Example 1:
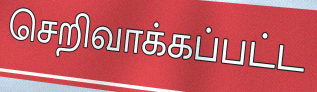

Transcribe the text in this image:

செறிவாக்கப்பட்ட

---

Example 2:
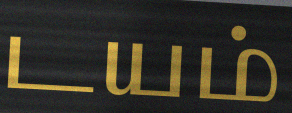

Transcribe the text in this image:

டயம்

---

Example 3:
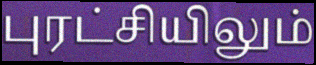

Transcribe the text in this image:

புரட்சியிலும்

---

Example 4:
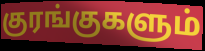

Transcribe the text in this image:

குரங்குகளும்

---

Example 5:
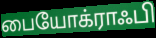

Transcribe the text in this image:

பையோக்ராஃபி